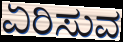
ಏರಿಸುವ